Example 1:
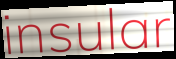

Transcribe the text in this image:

insular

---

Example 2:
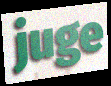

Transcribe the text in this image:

juge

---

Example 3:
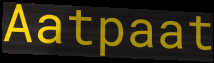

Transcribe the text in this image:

Aatpaat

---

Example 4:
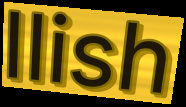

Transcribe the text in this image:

Ilish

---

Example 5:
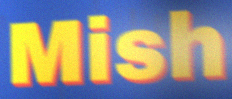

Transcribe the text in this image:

Mish